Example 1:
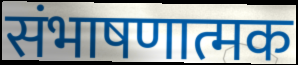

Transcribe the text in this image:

संभाषणात्मक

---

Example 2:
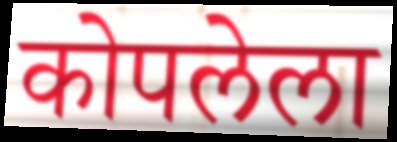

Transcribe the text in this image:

कोपलेला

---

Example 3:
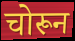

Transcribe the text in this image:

चोरून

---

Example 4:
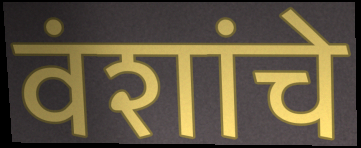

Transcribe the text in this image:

वंशांचे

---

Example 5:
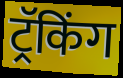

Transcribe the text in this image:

ट्रॅकिंग